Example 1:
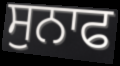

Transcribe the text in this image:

ਸੁਨਾਫ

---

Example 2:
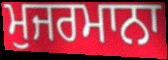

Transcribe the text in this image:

ਮੁਜਰਮਾਨਾ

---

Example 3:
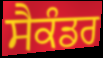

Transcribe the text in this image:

ਸੈਕੰਡਰ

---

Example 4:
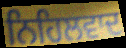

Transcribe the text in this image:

ਨਿਹਿਲਵਾਦ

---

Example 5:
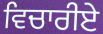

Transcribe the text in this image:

ਵਿਚਾਰੀਏ